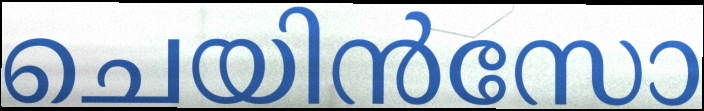
ചെയിൻസോ